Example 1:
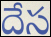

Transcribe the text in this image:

దేస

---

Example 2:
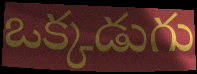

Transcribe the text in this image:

ఒక్కడుగు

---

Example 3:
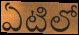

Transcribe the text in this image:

ఏటిలో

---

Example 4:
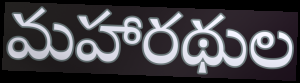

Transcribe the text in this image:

మహారథుల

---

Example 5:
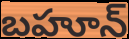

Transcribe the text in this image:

బహూన్